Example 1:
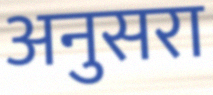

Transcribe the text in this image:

अनुसरा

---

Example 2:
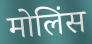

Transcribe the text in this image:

मोलिंस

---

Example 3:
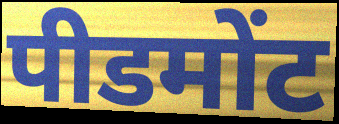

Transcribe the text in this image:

पीडमोंट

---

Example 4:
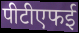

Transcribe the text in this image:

पीटीएफई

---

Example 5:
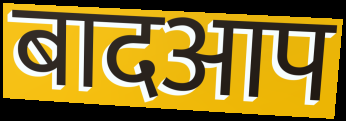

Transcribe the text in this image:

बादआप